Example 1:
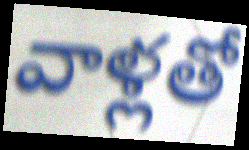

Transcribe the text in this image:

వాళ్లతో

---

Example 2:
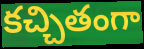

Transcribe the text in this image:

కచ్చితంగా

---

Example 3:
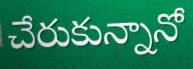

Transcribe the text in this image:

చేరుకున్నానో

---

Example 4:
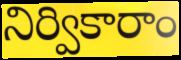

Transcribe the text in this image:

నిర్వికారాం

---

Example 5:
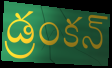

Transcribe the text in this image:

డ్రంకన్